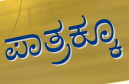
ಪಾತ್ರಕ್ಕೂ